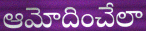
ఆమోదించేలా